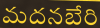
మదనబేరి